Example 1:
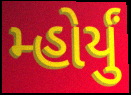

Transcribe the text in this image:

મ્હોર્યું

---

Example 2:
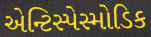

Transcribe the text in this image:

એન્ટિસ્પેસ્મોડિક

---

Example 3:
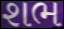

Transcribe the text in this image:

શભ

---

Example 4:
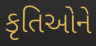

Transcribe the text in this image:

કૃતિઓને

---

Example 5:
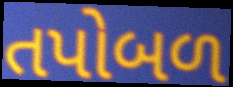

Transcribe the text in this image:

તપોબળ